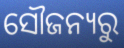
ସୌଜନ୍ୟରୁ